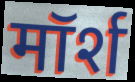
मॉर्श